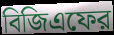
বিজিএফের